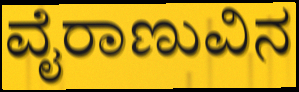
ವೈರಾಣುವಿನ